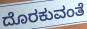
ದೊರಕುವಂತೆ